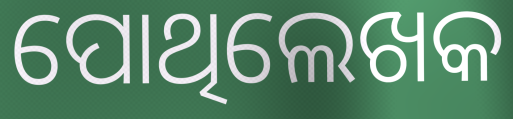
ପୋଥିଲେଖକ